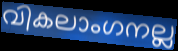
വികലാംഗനല്ല